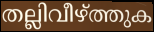
തല്ലിവീഴ്ത്തുക